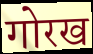
गोरख